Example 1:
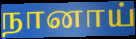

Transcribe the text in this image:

நானாய்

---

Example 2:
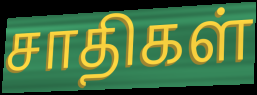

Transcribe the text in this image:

சாதிகள்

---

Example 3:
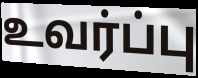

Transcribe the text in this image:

உவர்ப்பு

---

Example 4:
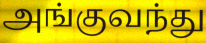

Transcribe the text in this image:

அங்குவந்து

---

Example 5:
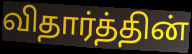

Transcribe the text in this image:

விதார்த்தின்